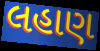
લહાણ